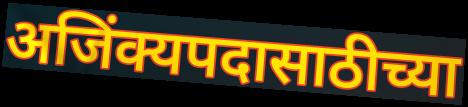
अजिंक्यपदासाठीच्या